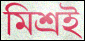
মিশ্ৰই